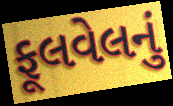
ફૂલવેલનું